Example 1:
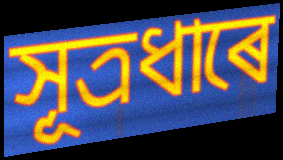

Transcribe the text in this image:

সূত্ৰধাৰে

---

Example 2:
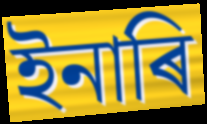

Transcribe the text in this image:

ইনাৰি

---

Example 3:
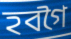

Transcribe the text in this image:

হবগৈ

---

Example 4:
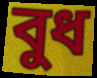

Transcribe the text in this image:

বুধ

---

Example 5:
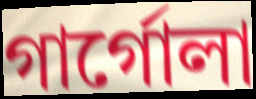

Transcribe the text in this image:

গাৰ্গোলা